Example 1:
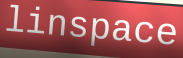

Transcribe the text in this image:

linspace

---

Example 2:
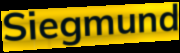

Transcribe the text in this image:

Siegmund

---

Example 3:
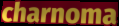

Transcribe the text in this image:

charnoma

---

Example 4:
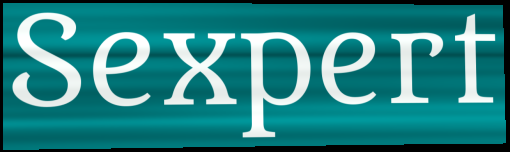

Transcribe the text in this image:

Sexpert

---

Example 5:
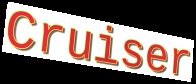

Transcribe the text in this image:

Cruiser